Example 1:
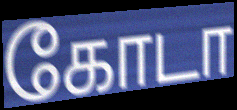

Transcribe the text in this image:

கோடா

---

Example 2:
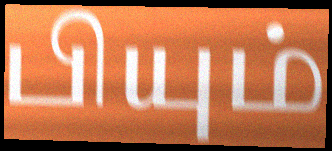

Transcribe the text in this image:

பியும்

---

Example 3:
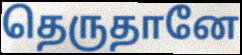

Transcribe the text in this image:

தெருதானே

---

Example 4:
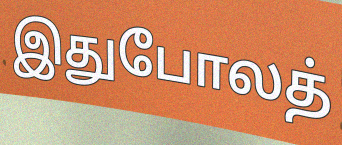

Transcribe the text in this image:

இதுபோலத்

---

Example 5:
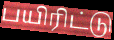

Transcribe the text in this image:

பயிரிட்டு